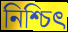
নিশ্চিৎ